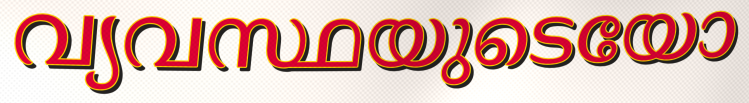
വ്യവസ്ഥയുടെയോ